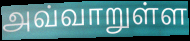
அவ்வாறுள்ள